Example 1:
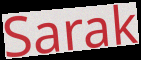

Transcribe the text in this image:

Sarak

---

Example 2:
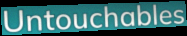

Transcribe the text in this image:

Untouchables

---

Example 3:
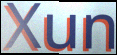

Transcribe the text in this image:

Xun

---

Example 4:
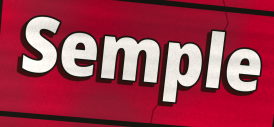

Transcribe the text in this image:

Semple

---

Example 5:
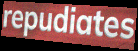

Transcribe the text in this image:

repudiates